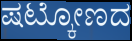
ಷಟ್ಕೋಣದ